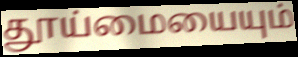
தூய்மையையும்